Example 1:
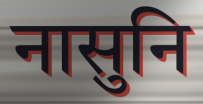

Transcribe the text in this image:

नासुनि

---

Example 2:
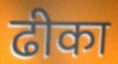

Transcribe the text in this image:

ढीका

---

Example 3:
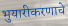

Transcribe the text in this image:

भुयारीकरणाचे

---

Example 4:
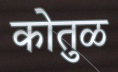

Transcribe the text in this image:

कोतुळ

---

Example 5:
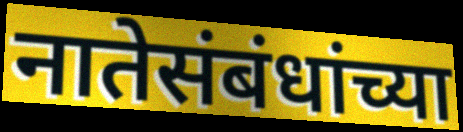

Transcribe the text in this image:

नातेसंबंधांच्या